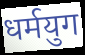
धर्मयुग